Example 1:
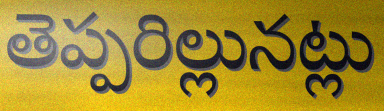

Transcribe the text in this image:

తెప్పరిల్లునట్లు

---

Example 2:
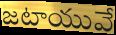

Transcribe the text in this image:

జటాయువే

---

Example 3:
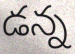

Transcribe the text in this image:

డన్న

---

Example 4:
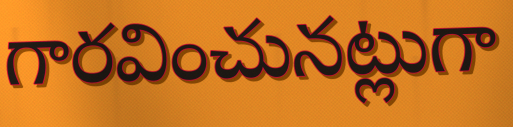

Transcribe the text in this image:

గారవించునట్లుగా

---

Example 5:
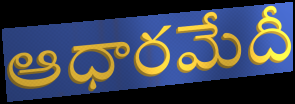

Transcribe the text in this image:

ఆధారమేదీ